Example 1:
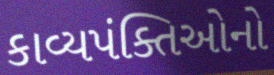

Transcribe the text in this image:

કાવ્યપંક્તિઓનો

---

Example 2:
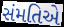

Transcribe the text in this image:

સંમતિએ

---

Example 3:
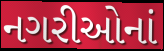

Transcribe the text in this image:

નગરીઓનાં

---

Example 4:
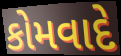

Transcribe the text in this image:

કોમવાદે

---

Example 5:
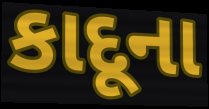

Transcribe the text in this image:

કાદૂના